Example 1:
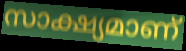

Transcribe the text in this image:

സാക്ഷ്യമാണ്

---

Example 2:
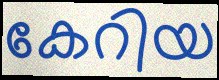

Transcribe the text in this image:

കേറിയ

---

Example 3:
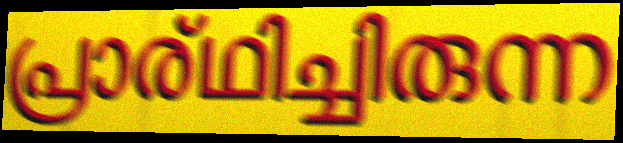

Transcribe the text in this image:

പ്രാര്ഥിച്ചിരുന്ന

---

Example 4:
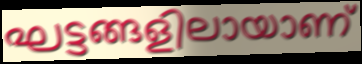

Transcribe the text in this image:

ഘട്ടങ്ങളിലായാണ്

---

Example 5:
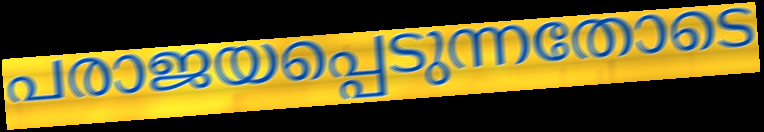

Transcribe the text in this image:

പരാജയപ്പെടുന്നതോടെ